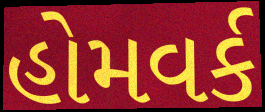
હોમવર્ક